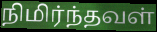
நிமிர்ந்தவள்